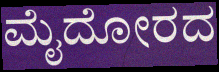
ಮೈದೋರದ